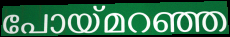
പോയ്മറഞ്ഞ